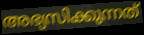
അഭ്യസിക്കുന്നത്